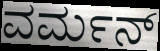
ವರ್ಮನ್